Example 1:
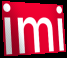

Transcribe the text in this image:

imi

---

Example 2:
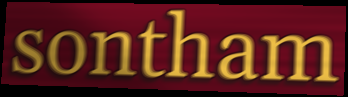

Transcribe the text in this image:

sontham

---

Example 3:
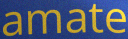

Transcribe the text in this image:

amate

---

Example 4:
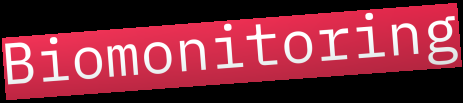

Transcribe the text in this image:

Biomonitoring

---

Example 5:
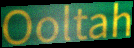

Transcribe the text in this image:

Ooltah